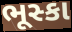
ભૂસ્કા